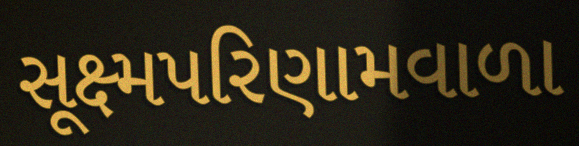
સૂક્ષ્મપરિણામવાળા